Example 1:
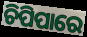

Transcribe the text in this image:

ଚିପିପାରେ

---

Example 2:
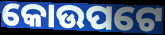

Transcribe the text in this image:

କୋଉପଟେ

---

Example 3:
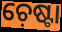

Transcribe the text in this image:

ଚ଼େଷ୍ଟା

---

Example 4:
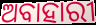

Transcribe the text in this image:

ଅବାହାରୀ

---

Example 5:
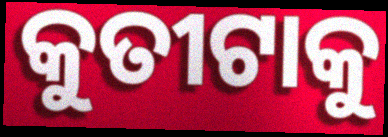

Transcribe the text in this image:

କୁତୀଟାକୁ